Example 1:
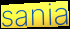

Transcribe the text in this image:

sania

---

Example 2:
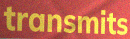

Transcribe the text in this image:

transmits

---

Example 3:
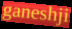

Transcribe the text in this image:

ganeshji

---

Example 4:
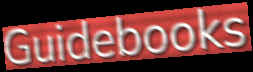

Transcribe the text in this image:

Guidebooks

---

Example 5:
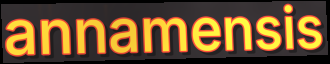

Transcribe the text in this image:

annamensis